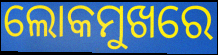
ଲୋକମୁଖରେ